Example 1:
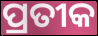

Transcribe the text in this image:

ପ୍ରତୀକ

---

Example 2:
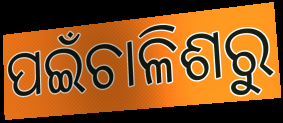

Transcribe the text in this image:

ପଇଁଚାଳିଶରୁ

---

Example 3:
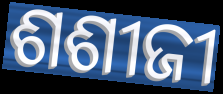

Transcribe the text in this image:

ଶଶୀଜୀ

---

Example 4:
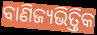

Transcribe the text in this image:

ବାଣିଜ୍ୟଭିତ୍ତିକ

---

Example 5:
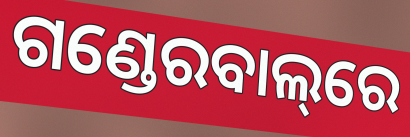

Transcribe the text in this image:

ଗଣ୍ଡେରବାଲ୍‌ରେ